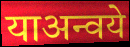
याअन्वये